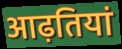
आढ़तियां